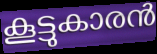
കൂട്ടുകാരൻ